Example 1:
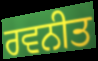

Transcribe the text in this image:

ਰਵਨੀਤ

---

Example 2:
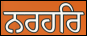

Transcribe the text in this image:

ਨਰਹਰਿ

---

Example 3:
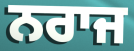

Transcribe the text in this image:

ਨਰਾਜ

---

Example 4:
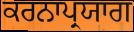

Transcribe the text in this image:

ਕਰਨਾਪ੍ਰਯਾਗ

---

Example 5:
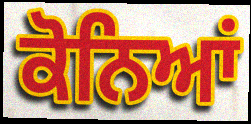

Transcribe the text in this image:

ਕੋਨਿਆਂ